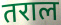
तराल